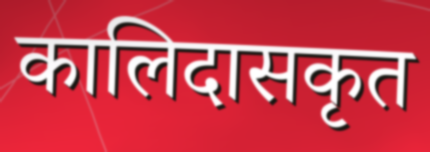
कालिदासकृत